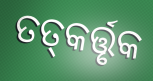
ତତ୍‌କର୍ତ୍ତୃକ